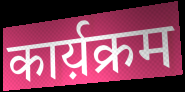
कार्य़क्रम